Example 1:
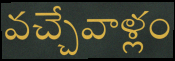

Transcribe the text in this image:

వచ్చేవాళ్లం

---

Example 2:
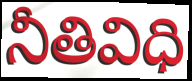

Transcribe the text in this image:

నీతివిధి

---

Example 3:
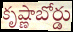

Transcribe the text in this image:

కృష్ణాబోర్డు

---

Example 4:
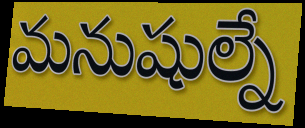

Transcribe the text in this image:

మనుషుల్నే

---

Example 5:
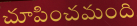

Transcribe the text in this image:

చూపించమంది